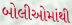
બોલીઓમાંથી